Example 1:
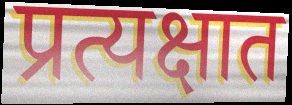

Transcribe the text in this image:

प्रत्यक्षात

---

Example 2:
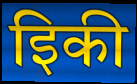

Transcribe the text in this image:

इिकी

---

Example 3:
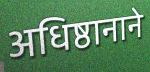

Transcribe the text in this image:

अधिष्ठानाने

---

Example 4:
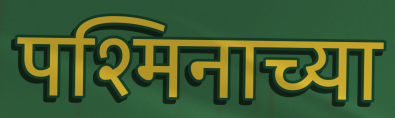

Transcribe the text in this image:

पश्मिनाच्या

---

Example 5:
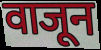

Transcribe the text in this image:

वाजून